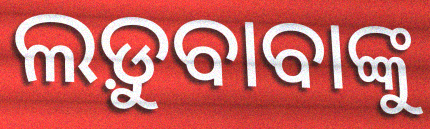
ଲଡ଼ୁବାବାଙ୍କୁ